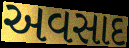
અવસાદ